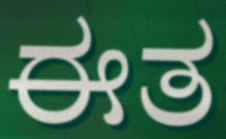
ಈತ